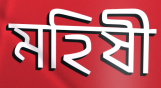
মহিষী